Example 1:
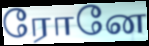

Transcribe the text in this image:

ரோனே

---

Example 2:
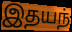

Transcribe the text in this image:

இதயந்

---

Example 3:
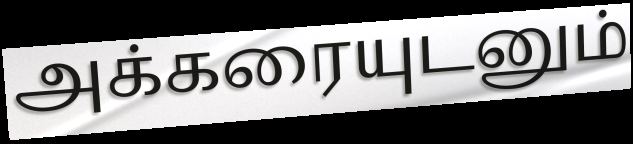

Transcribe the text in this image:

அக்கரையுடனும்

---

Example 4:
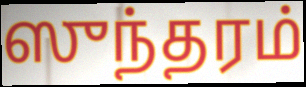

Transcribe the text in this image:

ஸுந்தரம்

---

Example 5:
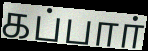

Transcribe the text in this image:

கப்பார்